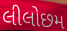
લીલોછમ